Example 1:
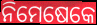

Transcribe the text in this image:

ନିମେଷେକେ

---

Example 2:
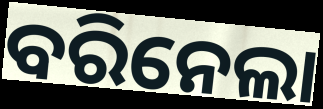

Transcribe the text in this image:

ବରିନେଲା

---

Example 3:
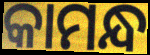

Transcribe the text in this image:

କାମନ୍ଧ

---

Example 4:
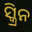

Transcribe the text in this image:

ସ୍କ୍ରିନ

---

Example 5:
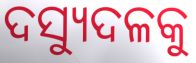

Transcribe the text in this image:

ଦସ୍ୟୁଦଳକୁ